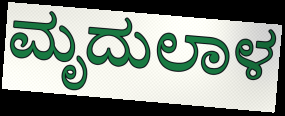
ಮೃದುಲಾಳ